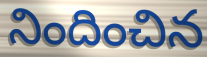
నిందించిన